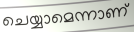
ചെയ്യാമെന്നാണ്